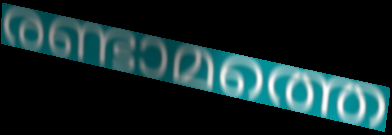
രണ്ടാമത്തെ